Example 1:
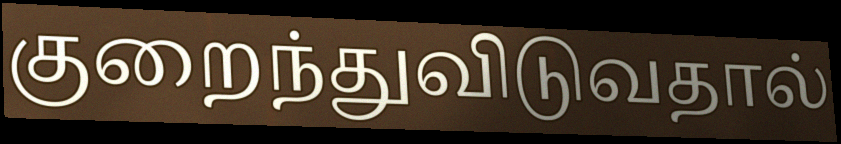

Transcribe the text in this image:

குறைந்துவிடுவதால்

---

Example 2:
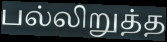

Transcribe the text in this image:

பல்லிறுத்த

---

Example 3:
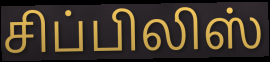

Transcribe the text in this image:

சிப்பிலிஸ்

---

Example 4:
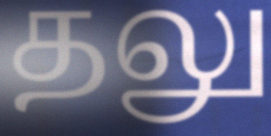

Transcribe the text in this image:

தலு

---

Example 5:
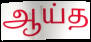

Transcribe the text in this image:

ஆய்த